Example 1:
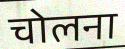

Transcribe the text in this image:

चोलना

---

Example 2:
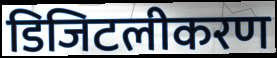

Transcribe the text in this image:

डिजिटलीकरण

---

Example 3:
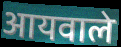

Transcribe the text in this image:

आयवाले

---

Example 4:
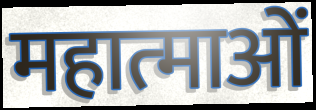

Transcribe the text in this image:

महात्‍माओं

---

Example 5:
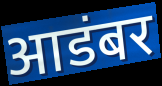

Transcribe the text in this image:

आडंबर